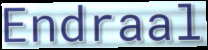
Endraal